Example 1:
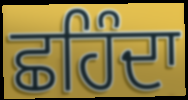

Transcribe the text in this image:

ਛਹਿੰਦਾ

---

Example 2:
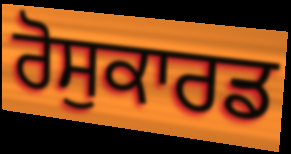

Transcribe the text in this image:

ਰੋਸੁਕਾਰਡ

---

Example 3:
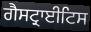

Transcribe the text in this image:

ਗੈਸਟ੍ਰਾਈਟਿਸ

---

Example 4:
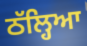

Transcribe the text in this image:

ਠੱਲ੍ਹਿਆ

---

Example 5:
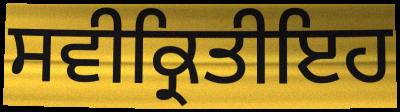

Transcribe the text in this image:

ਸਵੀਕ੍ਰਿਤੀਇਹ